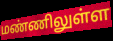
மண்ணிலுள்ள